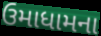
ઉમાધામના